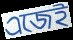
এজেই